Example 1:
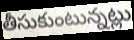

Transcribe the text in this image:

తీసుకుంటున్నట్లు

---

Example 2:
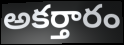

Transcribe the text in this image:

అకర్తారం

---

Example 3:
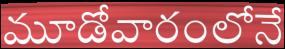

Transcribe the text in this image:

మూడోవారంలోనే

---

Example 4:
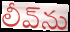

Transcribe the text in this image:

లీవ్‌ను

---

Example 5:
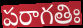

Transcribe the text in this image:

పరాగతిః